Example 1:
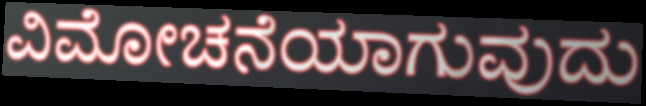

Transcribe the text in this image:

ವಿಮೋಚನೆಯಾಗುವುದು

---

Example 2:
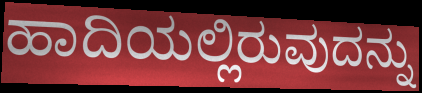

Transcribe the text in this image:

ಹಾದಿಯಲ್ಲಿರುವುದನ್ನು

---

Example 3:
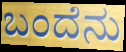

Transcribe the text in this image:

ಬಂದೆನು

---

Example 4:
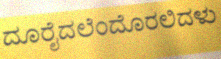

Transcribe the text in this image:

ದೂರೈದಲೆಂದೊರಲಿದಳು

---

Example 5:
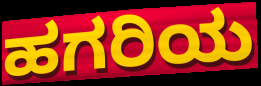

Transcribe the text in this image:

ಹಗರಿಯ